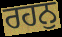
ਰਹਨੁ